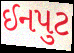
ઈનપુટ